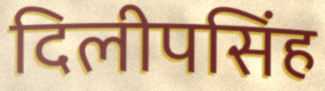
दिलीपसिंह